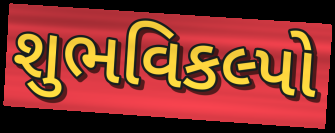
શુભવિકલ્પો